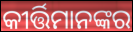
କୀର୍ତ୍ତିମାନଙ୍କର